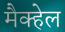
मैक्हेल